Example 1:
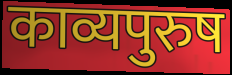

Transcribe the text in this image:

काव्यपुरुष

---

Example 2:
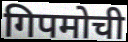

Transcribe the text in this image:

गिपमोची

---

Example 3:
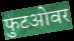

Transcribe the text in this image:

फुटओवर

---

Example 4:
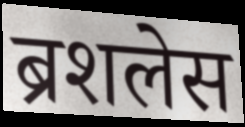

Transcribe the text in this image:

ब्रशलेस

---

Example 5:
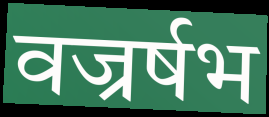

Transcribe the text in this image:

वज्रर्षभ